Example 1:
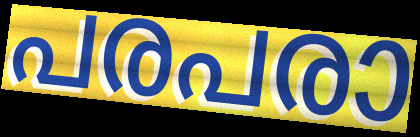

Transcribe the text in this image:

പരപരാ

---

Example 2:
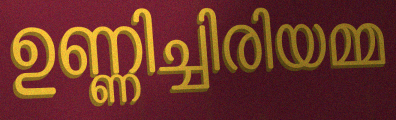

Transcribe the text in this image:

ഉണ്ണിച്ചിരിയമ്മ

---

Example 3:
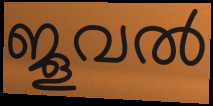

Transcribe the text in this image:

ജൂവൽ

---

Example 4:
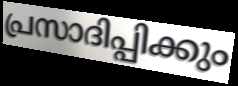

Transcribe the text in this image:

പ്രസാദിപ്പിക്കും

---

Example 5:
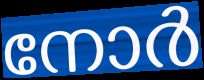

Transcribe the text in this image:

നോർ